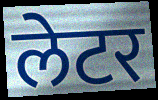
लेटर